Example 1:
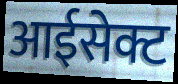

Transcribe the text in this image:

आईसेक्ट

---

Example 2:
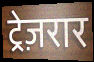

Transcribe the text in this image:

ट्रेज़रार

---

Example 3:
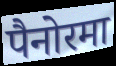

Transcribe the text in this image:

पैनोरमा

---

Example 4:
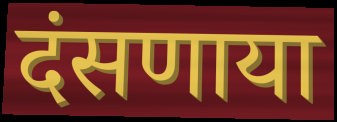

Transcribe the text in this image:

दंसणाया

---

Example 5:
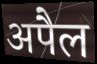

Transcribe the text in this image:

अपैल